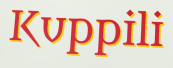
Kuppili